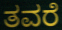
ತವರೆ